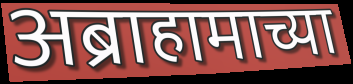
अब्राहामाच्या